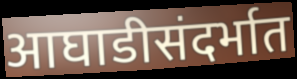
आघाडीसंदर्भात